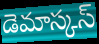
డెమాస్కస్